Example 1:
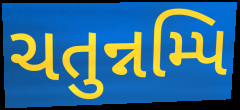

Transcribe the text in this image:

ચતુન્નમ્પિ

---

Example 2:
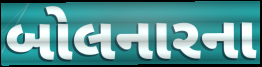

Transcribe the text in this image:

બોલનારના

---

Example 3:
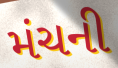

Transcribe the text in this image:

મંચની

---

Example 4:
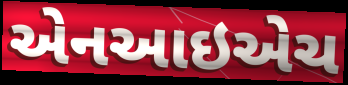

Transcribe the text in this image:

એનઆઇએચ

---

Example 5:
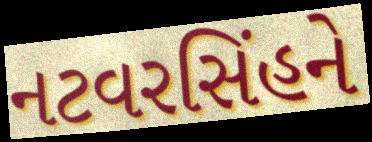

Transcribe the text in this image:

નટવરસિંહને